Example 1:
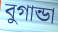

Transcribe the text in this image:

বুগান্ডা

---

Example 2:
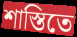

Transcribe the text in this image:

শাস্তিতে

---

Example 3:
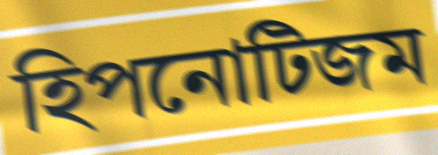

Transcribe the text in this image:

হিপনোটিজম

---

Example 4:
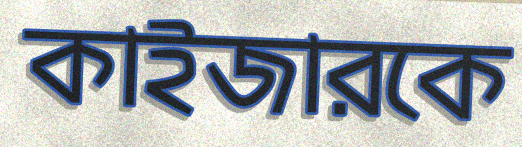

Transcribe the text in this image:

কাইজারকে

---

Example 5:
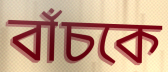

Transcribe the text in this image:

বাঁচকে